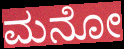
ಮನೋ